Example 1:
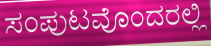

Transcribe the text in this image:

ಸಂಪುಟವೊಂದರಲ್ಲಿ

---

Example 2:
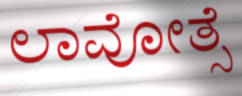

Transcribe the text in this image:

ಲಾವೋತ್ಸೆ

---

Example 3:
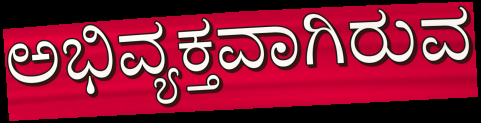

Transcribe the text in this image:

ಅಭಿವ್ಯಕ್ತವಾಗಿರುವ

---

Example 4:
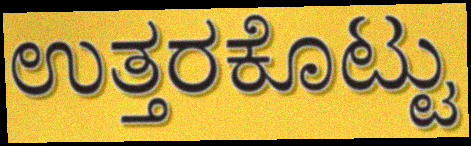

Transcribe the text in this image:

ಉತ್ತರಕೊಟ್ಟು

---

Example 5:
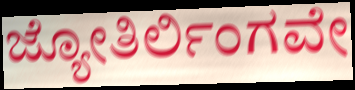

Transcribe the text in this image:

ಜ್ಯೋತಿರ್ಲಿಂಗವೇ